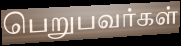
பெறுபவர்கள்